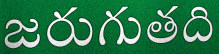
జరుగుతది